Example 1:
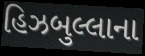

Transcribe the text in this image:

હિઝબુલ્લાના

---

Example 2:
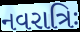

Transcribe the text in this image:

નવરાત્રિઃ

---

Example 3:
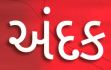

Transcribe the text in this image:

અંદક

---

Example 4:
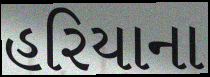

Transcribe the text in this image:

હરિયાના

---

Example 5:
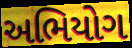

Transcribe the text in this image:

અભિયોગ